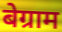
बेग्राम